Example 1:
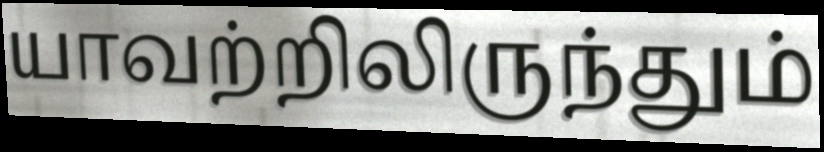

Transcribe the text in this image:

யாவற்றிலிருந்தும்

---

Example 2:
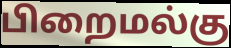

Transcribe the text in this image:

பிறைமல்கு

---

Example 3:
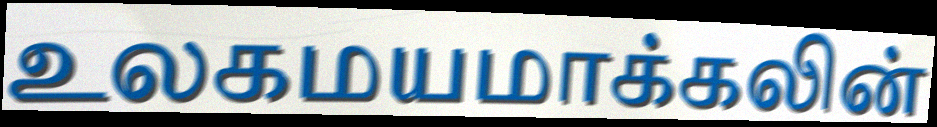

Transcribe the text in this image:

உலகமயமாக்கலின்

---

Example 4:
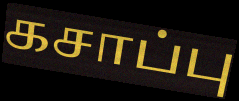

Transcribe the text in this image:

கசாப்பு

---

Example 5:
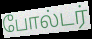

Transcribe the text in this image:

போல்டர்